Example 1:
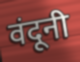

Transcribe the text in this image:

वंदूनी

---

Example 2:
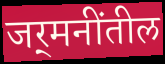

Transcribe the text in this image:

जर्मनींतील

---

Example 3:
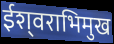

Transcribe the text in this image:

ईश्वराभिमुख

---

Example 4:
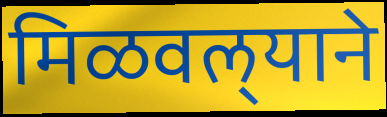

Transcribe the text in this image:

मिळवल्याने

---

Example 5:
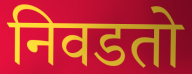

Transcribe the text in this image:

निवडतो